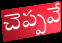
చెప్పవే